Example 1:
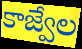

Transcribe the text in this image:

కాజ్వేల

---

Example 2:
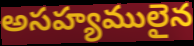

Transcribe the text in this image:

అసహ్యములైన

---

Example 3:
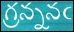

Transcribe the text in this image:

గ్రన్ననఁ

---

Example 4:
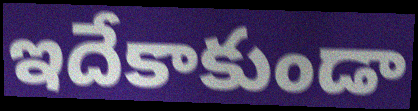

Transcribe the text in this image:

ఇదేకాకుండా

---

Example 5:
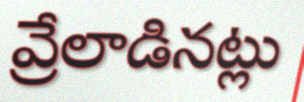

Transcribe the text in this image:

వ్రేలాడినట్లు